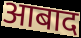
आबाद